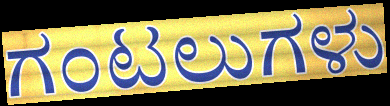
ಗಂಟಲುಗಳು